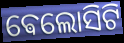
ଵେଲୋସିଟି